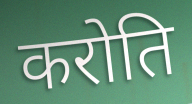
करोति